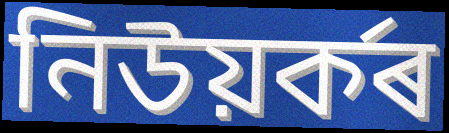
নিউয়ৰ্কৰ